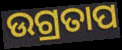
ଉଗ୍ରତାପ